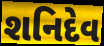
શનિદેવ